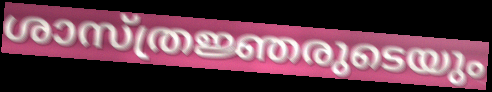
ശാസ്ത്രജ്ഞരുടെയും